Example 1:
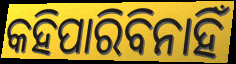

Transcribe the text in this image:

କହିପାରିବିନାହିଁ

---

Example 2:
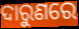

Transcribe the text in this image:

ଦାରୁଣରେ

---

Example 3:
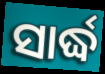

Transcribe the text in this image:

ସାର୍ଦ୍ଧ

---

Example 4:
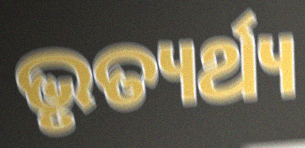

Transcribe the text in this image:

ଭୃତ୍ୟର୍ଥ୍ୟ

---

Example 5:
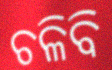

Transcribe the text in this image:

ଚଳିବି